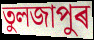
তুলজাপুৰ